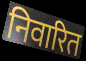
निवारित